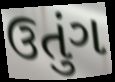
ઉતુંગ